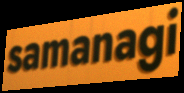
samanagi